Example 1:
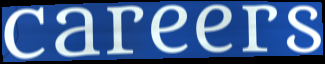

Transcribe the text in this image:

careers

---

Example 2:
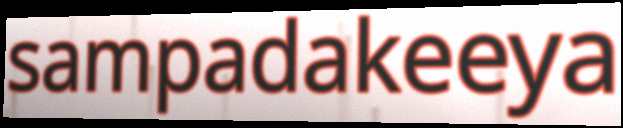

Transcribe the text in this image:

sampadakeeya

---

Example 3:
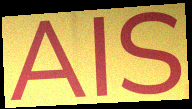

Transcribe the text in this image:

AIS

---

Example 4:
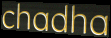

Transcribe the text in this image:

chadha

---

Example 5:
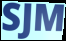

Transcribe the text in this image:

SJM